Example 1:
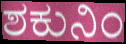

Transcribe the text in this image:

ಶಕುನಿಂ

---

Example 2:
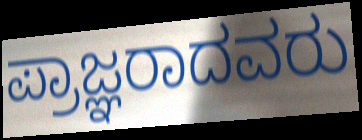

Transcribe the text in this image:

ಪ್ರಾಜ್ಞರಾದವರು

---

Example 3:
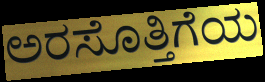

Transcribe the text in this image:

ಅರಸೊತ್ತಿಗೆಯ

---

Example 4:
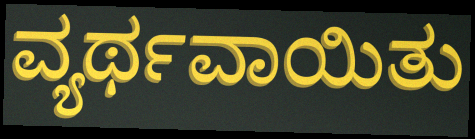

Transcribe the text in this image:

ವ್ಯರ್ಥವಾಯಿತು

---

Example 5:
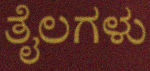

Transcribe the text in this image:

ತೈಲಗಳು